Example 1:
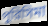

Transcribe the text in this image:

পুরিসিমা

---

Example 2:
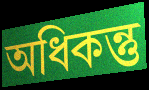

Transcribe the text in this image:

অধিকন্তু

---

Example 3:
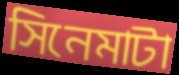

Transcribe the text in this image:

সিনেমাটা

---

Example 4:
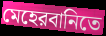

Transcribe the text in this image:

মেহেরবানিতে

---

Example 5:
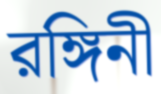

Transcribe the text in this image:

রঙ্গিনী